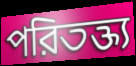
পরিতক্ত্য